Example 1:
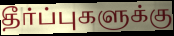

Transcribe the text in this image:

தீர்ப்புகளுக்கு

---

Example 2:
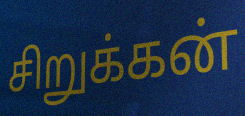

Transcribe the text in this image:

சிறுக்கன்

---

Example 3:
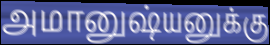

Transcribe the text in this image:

அமானுஷ்யனுக்கு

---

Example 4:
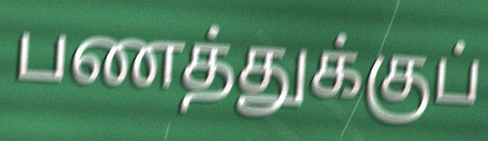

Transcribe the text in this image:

பணத்துக்குப்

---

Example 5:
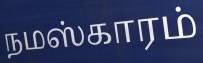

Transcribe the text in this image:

நமஸ்காரம்